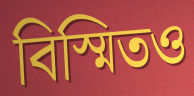
বিস্মিতও